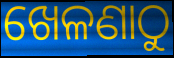
ଖେଳଣାଠୁ